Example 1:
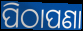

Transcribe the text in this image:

ପିଠାପଣା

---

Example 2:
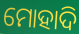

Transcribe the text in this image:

ମୋହାଦି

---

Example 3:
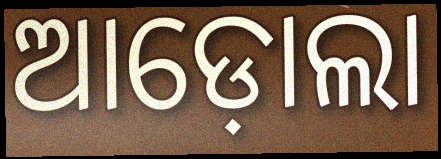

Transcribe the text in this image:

ଆଡ଼ୋଲା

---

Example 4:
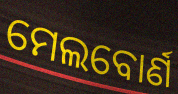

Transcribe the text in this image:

ମେଲବୋର୍ଣ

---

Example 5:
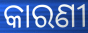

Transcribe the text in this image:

କାରଣୀ